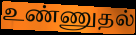
உண்ணுதல்